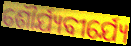
ଶୌର୍ଯ୍ୟବୀର୍ଯ୍ୟେ